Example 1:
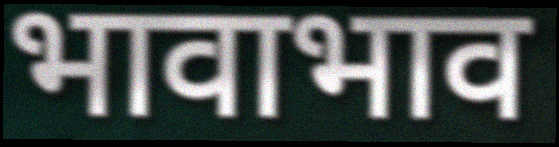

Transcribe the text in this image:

भावाभाव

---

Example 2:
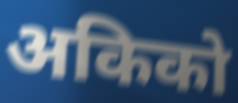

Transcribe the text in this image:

अकिको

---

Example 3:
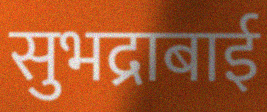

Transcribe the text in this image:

सुभद्राबाई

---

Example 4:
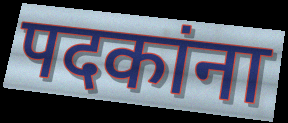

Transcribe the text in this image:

पदकांना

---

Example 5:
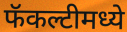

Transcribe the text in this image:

फॅकल्टीमध्ये